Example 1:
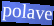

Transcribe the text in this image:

polave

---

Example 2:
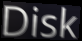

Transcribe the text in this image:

Disk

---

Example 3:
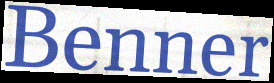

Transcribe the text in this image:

Benner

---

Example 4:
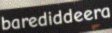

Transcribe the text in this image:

barediddeera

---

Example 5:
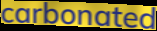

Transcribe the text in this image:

carbonated